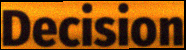
Decision